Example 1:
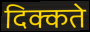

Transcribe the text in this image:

दिक्कते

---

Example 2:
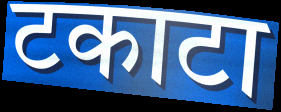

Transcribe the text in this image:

टकाटा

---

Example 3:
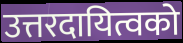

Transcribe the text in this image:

उत्तरदायित्वको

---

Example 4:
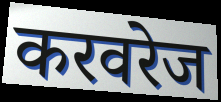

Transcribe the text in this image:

करवरेज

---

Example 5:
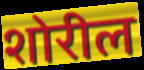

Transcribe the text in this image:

शोरील